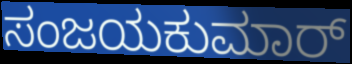
ಸಂಜಯಕುಮಾರ್